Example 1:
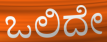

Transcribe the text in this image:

ಒಲಿದೇ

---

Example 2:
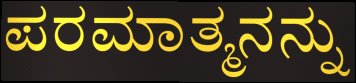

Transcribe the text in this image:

ಪರಮಾತ್ಮನನ್ನು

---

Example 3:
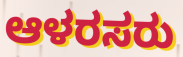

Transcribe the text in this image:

ಆಳರಸರು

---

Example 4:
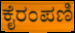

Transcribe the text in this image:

ಕೈರಂಪಣಿ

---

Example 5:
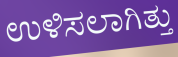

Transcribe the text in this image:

ಉಳಿಸಲಾಗಿತ್ತು